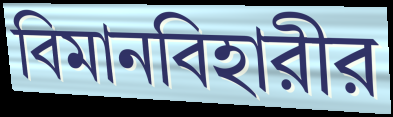
বিমানবিহারীর